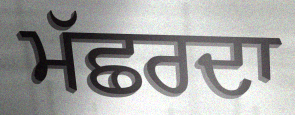
ਮੱਛਰਦਾ